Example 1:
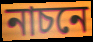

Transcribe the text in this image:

নাচনে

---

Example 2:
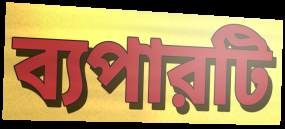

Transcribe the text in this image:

ব্যপারটি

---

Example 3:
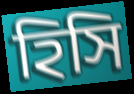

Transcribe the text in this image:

হিসি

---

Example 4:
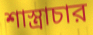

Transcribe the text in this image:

শাস্ত্রাচার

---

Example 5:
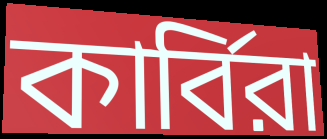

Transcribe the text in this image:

কার্বিরা